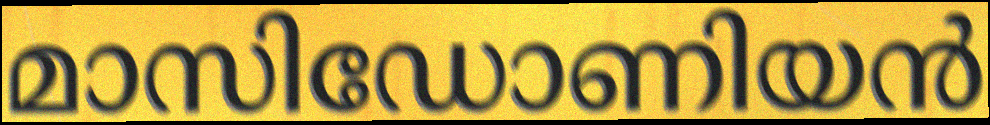
മാസിഡോണിയൻ